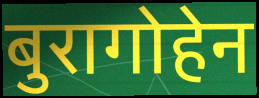
बुरागोहेन